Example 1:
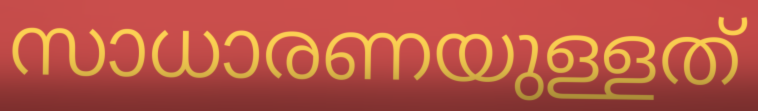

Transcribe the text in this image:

സാധാരണയുള്ളത്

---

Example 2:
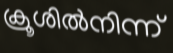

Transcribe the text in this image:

ക്രൂശിൽനിന്ന്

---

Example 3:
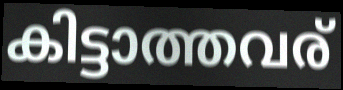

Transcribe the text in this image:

കിട്ടാത്തവര്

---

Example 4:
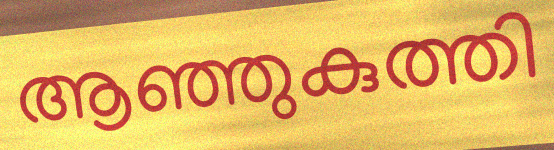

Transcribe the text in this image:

ആഞ്ഞുകുത്തി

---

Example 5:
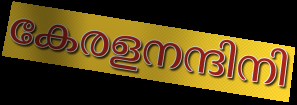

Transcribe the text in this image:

കേരളനന്ദിനി